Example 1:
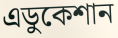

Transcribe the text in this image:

এডুকেশান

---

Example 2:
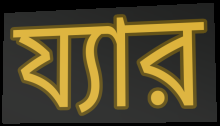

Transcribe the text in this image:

য্যার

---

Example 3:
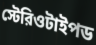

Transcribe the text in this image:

স্টেরিওটাইপড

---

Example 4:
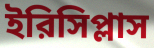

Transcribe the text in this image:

ইরিসিপ্লাস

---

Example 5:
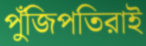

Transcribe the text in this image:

পুঁজিপতিরাই